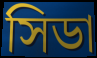
সিডা